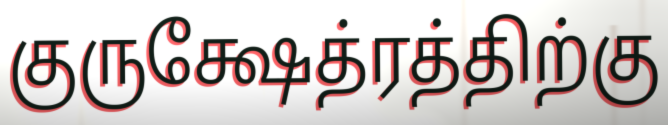
குருக்ஷேத்ரத்திற்கு